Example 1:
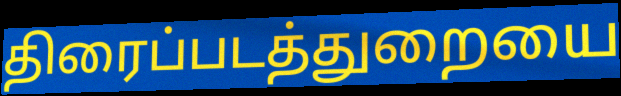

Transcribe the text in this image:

திரைப்படத்துறையை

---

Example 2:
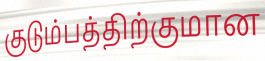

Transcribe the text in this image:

குடும்பத்திற்குமான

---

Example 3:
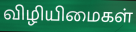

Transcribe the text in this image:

விழியிமைகள்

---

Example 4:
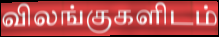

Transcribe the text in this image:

விலங்குகளிடம்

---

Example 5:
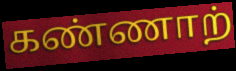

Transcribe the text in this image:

கண்ணாற்